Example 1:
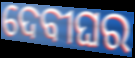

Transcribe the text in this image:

ଦେବୀଘର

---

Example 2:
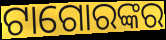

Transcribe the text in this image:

ଟାଗୋରଙ୍କର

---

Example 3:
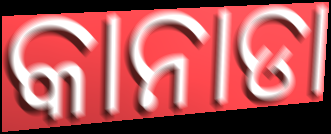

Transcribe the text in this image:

କାନାଡା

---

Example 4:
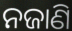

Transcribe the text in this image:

ନଜାଣି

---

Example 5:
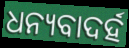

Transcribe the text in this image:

ଧନ୍ୟବାଦର୍ହ